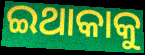
ଇଥାକାକୁ